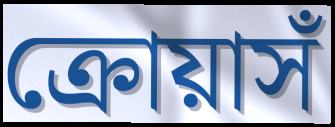
ক্রোয়াসঁ